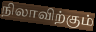
நிலாவிற்கும்